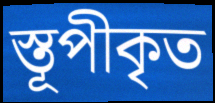
স্তূপীকৃত